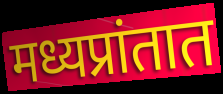
मध्यप्रांतात